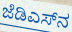
ಜೆಡಿಎಸ್‌ನ